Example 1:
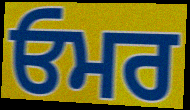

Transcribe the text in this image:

ਓਮਰ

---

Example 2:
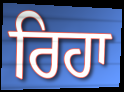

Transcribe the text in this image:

ਰਿਹਾ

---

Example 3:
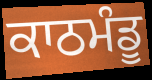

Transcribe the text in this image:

ਕਾਠਮੰਡੂ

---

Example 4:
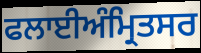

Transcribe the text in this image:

ਫਲਾਈਅੰਮ੍ਰਿਤਸਰ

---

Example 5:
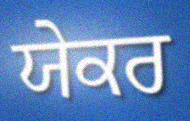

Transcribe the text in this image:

ਯੇਕਰ